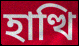
হাত্থি